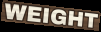
WEIGHT